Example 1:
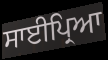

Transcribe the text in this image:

ਸਾਈਪ੍ਰਿਆ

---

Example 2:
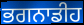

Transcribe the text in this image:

ਭਗਨਾਡੀਹ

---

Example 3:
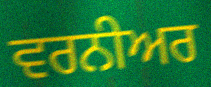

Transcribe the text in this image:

ਵਰਨੀਅਰ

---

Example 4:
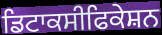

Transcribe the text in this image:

ਡਿਟਾਕਸੀਫਿਕੇਸ਼ਨ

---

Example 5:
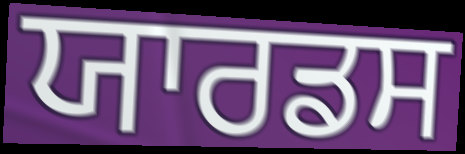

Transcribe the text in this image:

ਯਾਰਡਸ